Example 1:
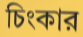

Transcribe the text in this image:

চিংকার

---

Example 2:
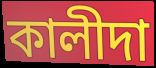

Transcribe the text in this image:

কালীদা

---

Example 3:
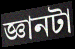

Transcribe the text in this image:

জ্ঞানটা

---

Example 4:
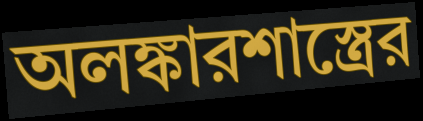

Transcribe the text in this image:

অলঙ্কারশাস্ত্রের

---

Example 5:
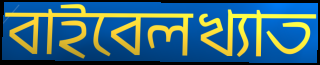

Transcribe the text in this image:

বাইবেলখ্যাত